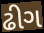
ઢીગ